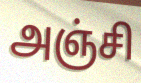
அஞ்சி